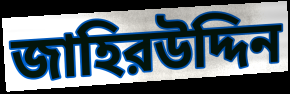
জাহিরউদ্দিন